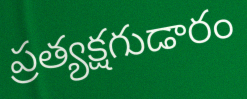
ప్రత్యక్షగుడారం